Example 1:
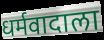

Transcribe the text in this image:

धर्मवादाला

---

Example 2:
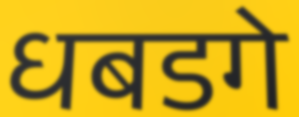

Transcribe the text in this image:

धबडगे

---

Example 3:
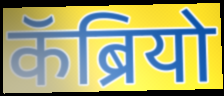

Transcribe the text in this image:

कॅब्रियो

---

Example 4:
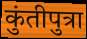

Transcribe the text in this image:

कुंतीपुत्रा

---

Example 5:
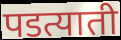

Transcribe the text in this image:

पडत्याती